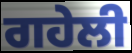
ਗਹੇਲੀ